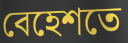
বেহেশতে